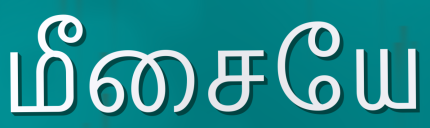
மீசையே